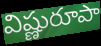
విష్ణురూపా